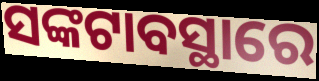
ସଙ୍କଟାବସ୍ଥାରେ